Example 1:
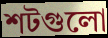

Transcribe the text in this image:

শটগুলো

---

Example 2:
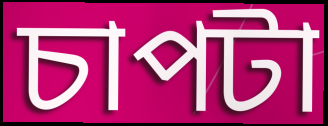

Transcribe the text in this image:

চাপটা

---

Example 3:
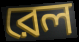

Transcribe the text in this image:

রেল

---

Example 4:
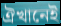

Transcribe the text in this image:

ঐখানেই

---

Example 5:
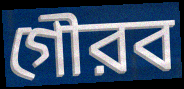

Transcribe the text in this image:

গৌরব